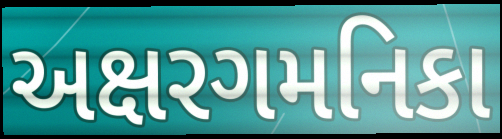
અક્ષરગમનિકા